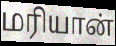
மரியான்